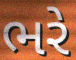
ભરે